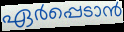
ഏർപ്പെടാൻ